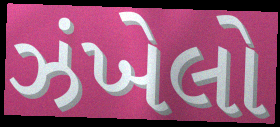
ઝંખેલો